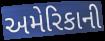
અમેરિકાની